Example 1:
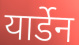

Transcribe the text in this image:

यार्डेन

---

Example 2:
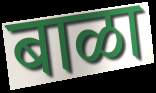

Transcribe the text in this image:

बाळा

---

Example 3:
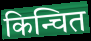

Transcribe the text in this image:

किन्चित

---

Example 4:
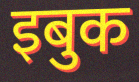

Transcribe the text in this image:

इबुक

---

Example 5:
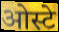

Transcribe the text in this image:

ओस्टे